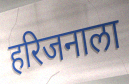
हरिजनाला